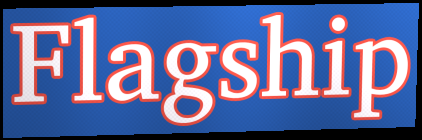
Flagship